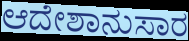
ಆದೇಶಾನುಸಾರ